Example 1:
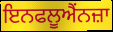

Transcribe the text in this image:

ਇਨਫਲੂਐਂਨਜ਼ਾ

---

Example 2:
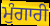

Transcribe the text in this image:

ਮੁੰਗਾਰੀ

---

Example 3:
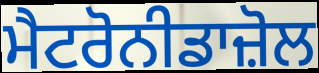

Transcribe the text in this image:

ਮੈਟਰੋਨੀਡਾਜ਼ੋਲ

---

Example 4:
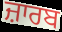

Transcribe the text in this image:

ਜ਼ਾਰਬ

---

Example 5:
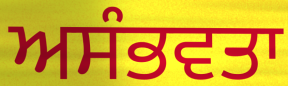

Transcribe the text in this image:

ਅਸੰਭਵਤਾ